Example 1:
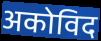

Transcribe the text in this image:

अकोविद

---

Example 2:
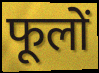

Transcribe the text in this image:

फूलों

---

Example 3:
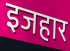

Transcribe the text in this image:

इजहार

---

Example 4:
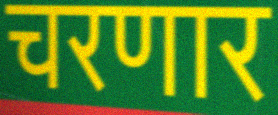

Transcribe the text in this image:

चरणार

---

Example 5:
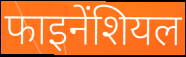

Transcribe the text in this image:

फाइनेंशियल